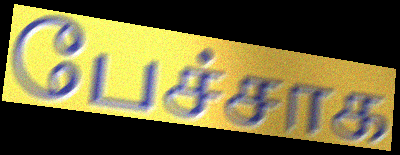
பேச்சாக